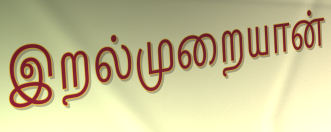
இறல்முறையான்